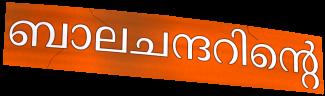
ബാലചന്ദറിന്റെ